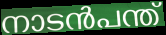
നാടൻപന്ത്